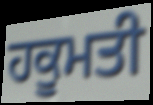
ਹਕੂਮਤੀ